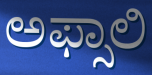
ಅಫ್ಸಾಲಿ